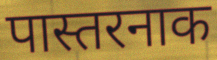
पास्तरनाक